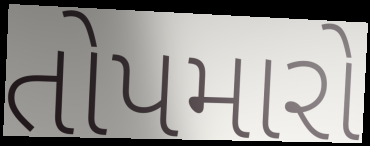
તોપમારો